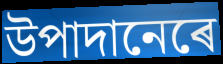
উপাদানেৰে